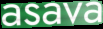
asava